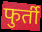
फुर्ती